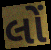
લોં